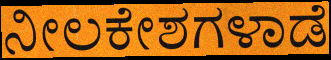
ನೀಲಕೇಶಗಳಾಡೆ